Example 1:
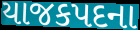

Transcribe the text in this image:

યાજકપદના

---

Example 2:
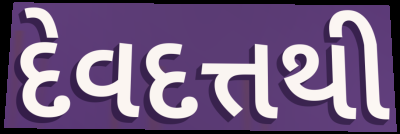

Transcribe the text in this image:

દેવદત્તથી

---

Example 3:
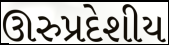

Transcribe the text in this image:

ઊરુપ્રદેશીય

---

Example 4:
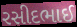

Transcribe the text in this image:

રસીદભાઈ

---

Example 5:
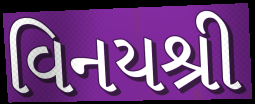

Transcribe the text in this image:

વિનયશ્રી